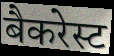
बैकरेस्ट